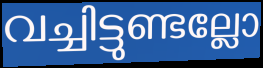
വച്ചിട്ടുണ്ടല്ലോ